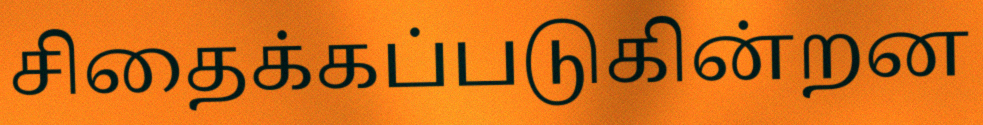
சிதைக்கப்படுகின்றன